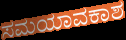
ಸಮಯಾವಕಾಶ